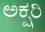
ಅಕ್ಷರಿ